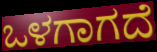
ಒಳಗಾಗದೆ